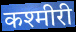
कश्‍मीरी